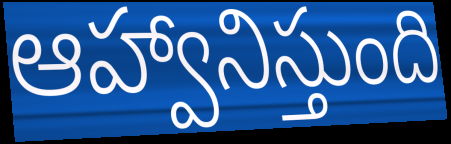
ఆహ్వానిస్తుంది